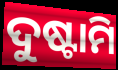
ଦୁଷ୍ଟାମି